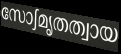
സോഽമൃതത്വായ